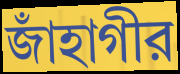
জাঁহাগীর